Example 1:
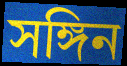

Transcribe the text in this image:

সঙ্গিন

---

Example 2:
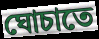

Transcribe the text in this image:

ঘোচাতে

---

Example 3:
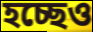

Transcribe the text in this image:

হচ্ছেও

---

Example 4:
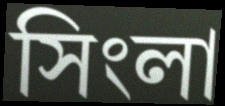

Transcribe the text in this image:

সিংলা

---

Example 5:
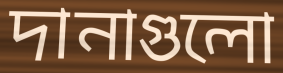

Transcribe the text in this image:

দানাগুলো